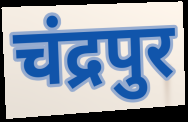
चंद्रपुर